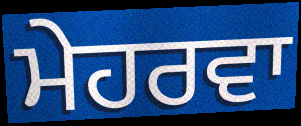
ਮੇਹਰਵਾ